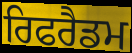
ਰਿਫਰੈਡਮ